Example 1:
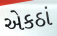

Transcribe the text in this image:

એકઠાં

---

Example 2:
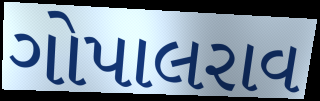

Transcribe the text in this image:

ગોપાલરાવ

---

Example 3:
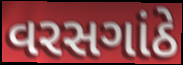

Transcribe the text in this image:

વરસગાંઠે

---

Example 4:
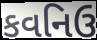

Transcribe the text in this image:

કવનિઉ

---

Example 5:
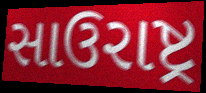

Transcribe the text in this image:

સાઉરાષ્ટ્ર